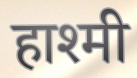
हाश्मी